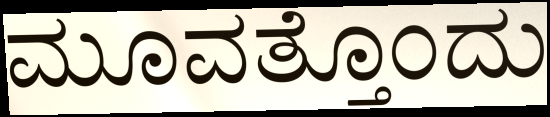
ಮೂವತ್ತೊಂದು